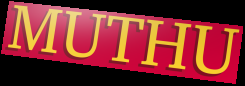
MUTHU